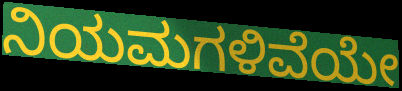
ನಿಯಮಗಳಿವೆಯೇ